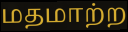
மதமாற்ற